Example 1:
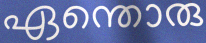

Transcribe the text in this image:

ഏന്തൊരു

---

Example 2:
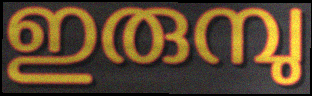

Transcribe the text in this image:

ഇരുമ്പു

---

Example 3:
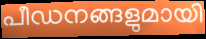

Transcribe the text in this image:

പീഡനങ്ങളുമായി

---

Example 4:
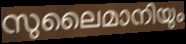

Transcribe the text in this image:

സുലൈമാനിയും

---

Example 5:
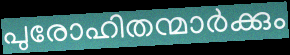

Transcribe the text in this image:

പുരോഹിതന്മാർക്കും